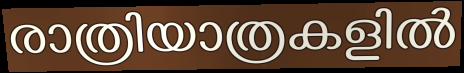
രാത്രിയാത്രകളിൽ